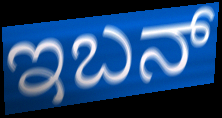
ಇಬನ್